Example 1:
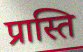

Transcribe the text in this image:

प्रास्ति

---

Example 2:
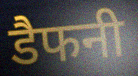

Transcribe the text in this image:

डैफनी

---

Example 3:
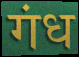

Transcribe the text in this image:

गंध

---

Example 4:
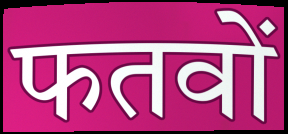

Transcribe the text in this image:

फतवों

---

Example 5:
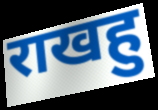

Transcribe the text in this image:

राखहु